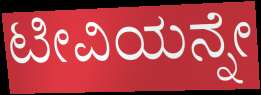
ಟೀವಿಯನ್ನೇ